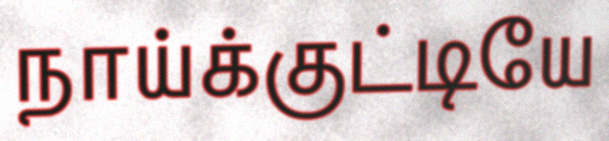
நாய்க்குட்டியே